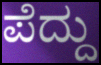
ಪೆದ್ದು